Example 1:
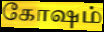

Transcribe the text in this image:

கோஷம்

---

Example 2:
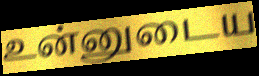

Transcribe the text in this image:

உன்னுடைய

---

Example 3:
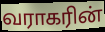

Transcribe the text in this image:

வராகரின்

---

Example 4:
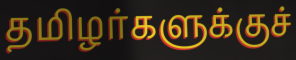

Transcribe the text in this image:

தமிழர்களுக்குச்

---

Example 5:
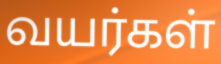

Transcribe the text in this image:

வயர்கள்